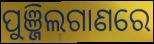
ପୁଞ୍ଜିଲଗାଣରେ